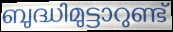
ബുദ്ധിമുട്ടാറുണ്ട്